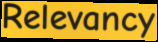
Relevancy